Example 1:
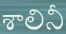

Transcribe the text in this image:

శాలినీ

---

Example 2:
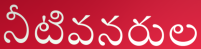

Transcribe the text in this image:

నీటివనరుల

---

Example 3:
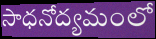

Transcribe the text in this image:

సాధనోద్యమంలో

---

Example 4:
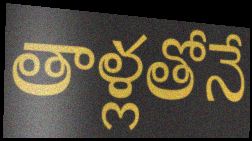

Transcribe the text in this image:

తాళ్లతోనే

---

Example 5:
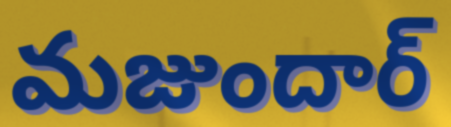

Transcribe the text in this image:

మజుందార్